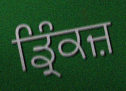
ਡ੍ਰਿੰਕਜ਼